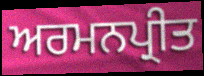
ਅਰਮਨਪ੍ਰੀਤ